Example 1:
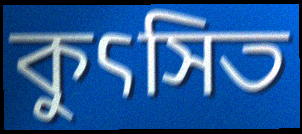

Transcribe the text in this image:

কুৎসিত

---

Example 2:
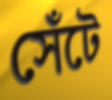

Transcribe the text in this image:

সেঁটে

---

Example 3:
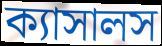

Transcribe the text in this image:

ক্যাসালস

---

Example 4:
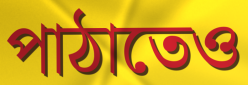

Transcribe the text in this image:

পাঠাতেও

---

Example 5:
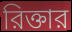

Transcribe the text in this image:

রিক্তার